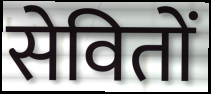
सेवितों